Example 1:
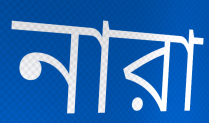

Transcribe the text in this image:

নারা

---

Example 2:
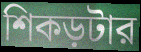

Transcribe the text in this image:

শিকড়টার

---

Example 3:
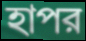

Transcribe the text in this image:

হাপর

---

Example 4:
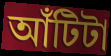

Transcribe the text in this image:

আঁটিটা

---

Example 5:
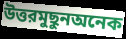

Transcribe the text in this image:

উত্তরমুছুনঅনেক